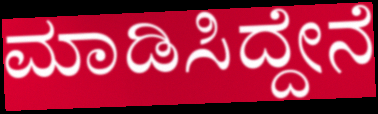
ಮಾಡಿಸಿದ್ದೇನೆ